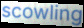
scowling